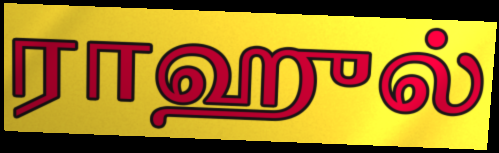
ராஹுல்